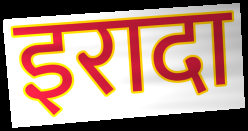
इरादा